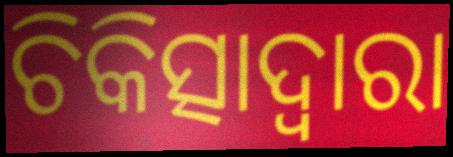
ଚିକିତ୍ସାଦ୍ଵାରା